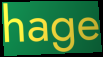
hage